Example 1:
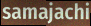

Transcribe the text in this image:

samajachi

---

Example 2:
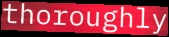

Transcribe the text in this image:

thoroughly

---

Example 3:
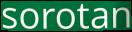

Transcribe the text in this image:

sorotan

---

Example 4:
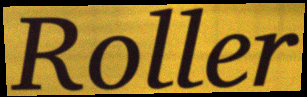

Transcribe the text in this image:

Roller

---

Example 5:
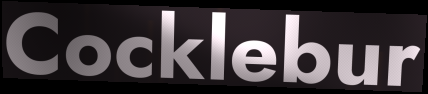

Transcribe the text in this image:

Cocklebur